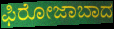
ಫಿರೋಜಾಬಾದ